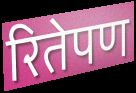
रितेपण